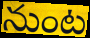
నుంట